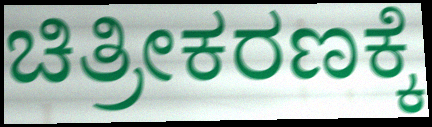
ಚಿತ್ರೀಕರಣಕ್ಕೆ